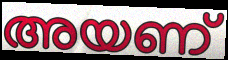
അയണ്